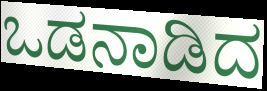
ಒಡನಾಡಿದ